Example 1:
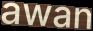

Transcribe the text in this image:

awan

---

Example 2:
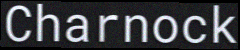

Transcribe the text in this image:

Charnock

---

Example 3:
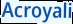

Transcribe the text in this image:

Acroyali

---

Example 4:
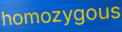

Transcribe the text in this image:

homozygous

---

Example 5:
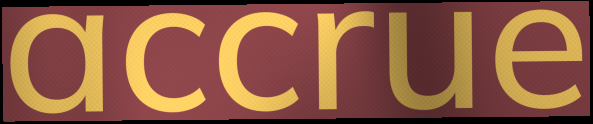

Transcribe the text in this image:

accrue